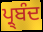
ਪ੍ਰ੍ਬੰਦ